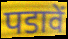
पडावें